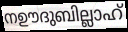
നഊദുബില്ലാഹ്